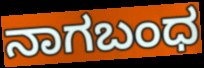
ನಾಗಬಂಧ